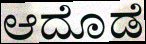
ಆದೊಡೆ